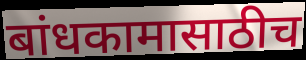
बांधकामासाठीच